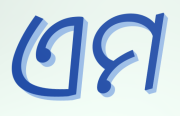
ଏମ